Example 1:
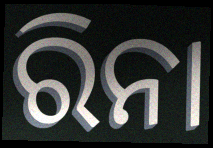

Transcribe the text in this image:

ରିନା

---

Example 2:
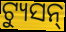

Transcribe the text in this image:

ଟ୍ୟୁସନ୍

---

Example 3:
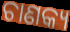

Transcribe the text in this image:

ଚାଣକ୍ଯ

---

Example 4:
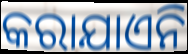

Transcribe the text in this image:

କରାଯାଏନି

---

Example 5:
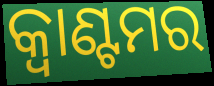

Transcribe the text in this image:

କ୍ୱାଣ୍ଟମର